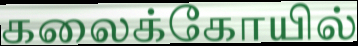
கலைக்கோயில்